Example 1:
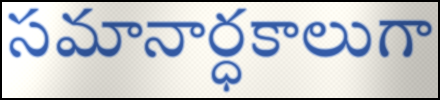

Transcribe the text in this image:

సమానార్ధకాలుగా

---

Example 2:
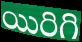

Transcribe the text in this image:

యిరిగి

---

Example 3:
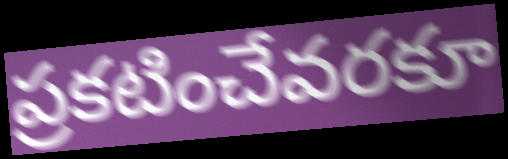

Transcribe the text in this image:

ప్రకటించేవరకూ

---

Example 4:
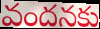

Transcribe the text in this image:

వందనకు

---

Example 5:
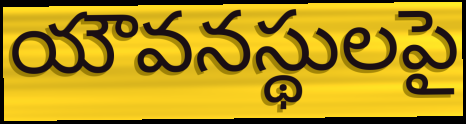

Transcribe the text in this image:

యౌవనస్థులపై